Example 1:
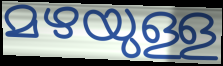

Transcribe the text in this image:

മഴയുള്ള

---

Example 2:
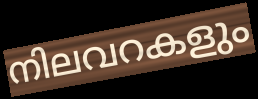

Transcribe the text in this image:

നിലവറകളും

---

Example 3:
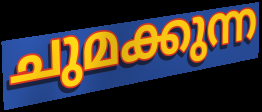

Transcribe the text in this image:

ചുമക്കുന്ന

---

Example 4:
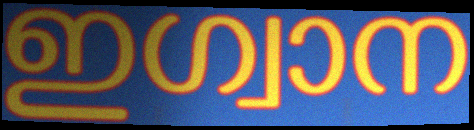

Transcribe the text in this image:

ഇഗ്വാന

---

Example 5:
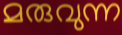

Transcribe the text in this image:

മരുവുന്ന